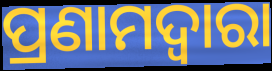
ପ୍ରଣାମଦ୍ୱାରା